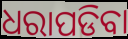
ଧରାପଡିବା